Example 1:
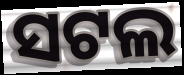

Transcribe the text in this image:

ସଟଲ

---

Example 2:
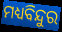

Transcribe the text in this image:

ମଧ୍ୟବିନ୍ଦୁର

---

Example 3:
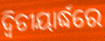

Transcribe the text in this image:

ଦ୍ୱିତୀୟାର୍ଦ୍ଧରେ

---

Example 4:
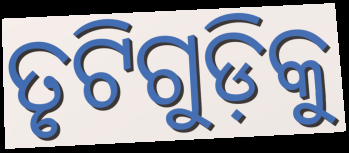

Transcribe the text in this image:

ତୃଟିଗୁଡ଼ିକୁ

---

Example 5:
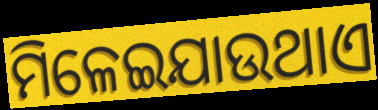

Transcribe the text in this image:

ମିଳେଇଯାଉଥାଏ